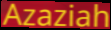
Azaziah